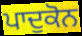
ਪਾਦੁਕੋਨ